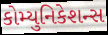
કોમ્યુનિકેશન્સ